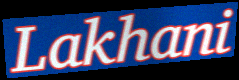
Lakhani